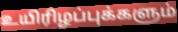
உயிரிழப்புக்களும்